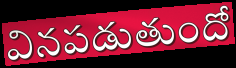
వినపడుతుందో